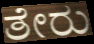
ತೇರು